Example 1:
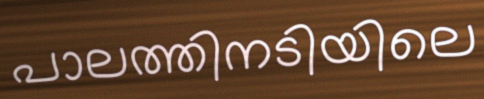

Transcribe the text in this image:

പാലത്തിനടിയിലെ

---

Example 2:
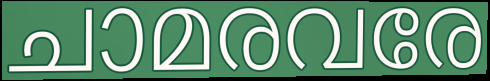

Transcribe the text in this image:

ചാമരവരേ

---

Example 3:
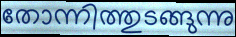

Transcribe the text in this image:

തോന്നിത്തുടങ്ങുന്നു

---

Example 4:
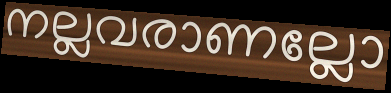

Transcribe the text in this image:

നല്ലവരാണല്ലോ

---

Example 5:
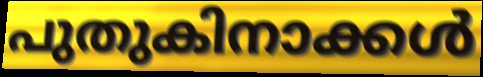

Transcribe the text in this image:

പുതുകിനാക്കൾ